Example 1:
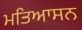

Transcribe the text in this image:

ਮਤਿਆਸਨ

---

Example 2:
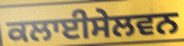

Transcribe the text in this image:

ਕਲਾਈਸੇਲਵਨ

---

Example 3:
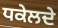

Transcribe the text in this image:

ਧਕੇਲਦੇ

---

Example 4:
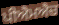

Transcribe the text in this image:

ਪੀਐਮਐਚ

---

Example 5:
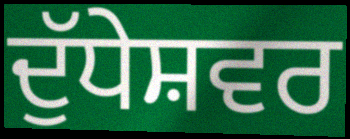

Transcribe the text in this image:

ਦੁੱਧੇਸ਼ਵਰ